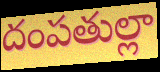
దంపతుల్లా